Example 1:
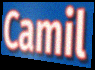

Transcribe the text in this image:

Camil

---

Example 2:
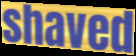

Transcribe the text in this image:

shaved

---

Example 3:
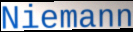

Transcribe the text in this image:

Niemann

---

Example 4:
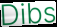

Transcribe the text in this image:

Dibs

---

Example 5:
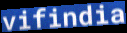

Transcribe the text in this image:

vifindia